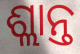
ଶ୍ଲାନ୍ତ